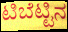
ಟಿಬೆಟ್ಟಿನ